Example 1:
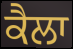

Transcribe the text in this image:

ਕੈਲਾ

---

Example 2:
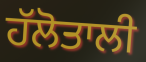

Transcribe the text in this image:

ਹੱਲੋਤਾਲੀ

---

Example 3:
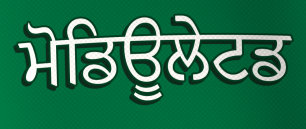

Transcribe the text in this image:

ਮੋਡਿਊਲੇਟਡ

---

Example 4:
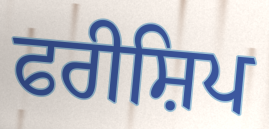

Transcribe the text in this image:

ਫਰੀਸ਼ਿਪ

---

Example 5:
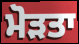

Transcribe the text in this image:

ਮੋੜਤਾ